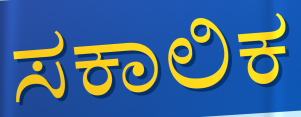
ಸಕಾಲಿಕ